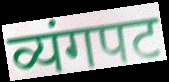
व्यंगपट